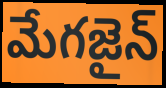
మేగజైన్